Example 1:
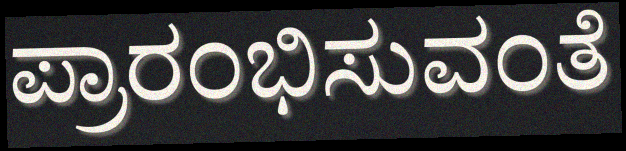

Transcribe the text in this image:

ಪ್ರಾರಂಭಿಸುವಂತೆ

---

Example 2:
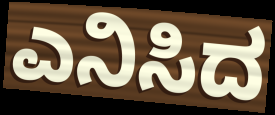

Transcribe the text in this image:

ಎನಿಸಿದ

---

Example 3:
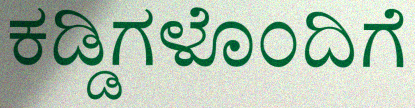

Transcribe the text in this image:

ಕಡ್ಡಿಗಳೊಂದಿಗೆ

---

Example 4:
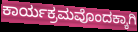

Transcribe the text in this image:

ಕಾರ್ಯಕ್ರಮವೊಂದಕ್ಕಾಗಿ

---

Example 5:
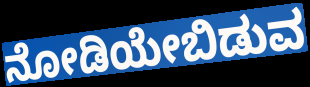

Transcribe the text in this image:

ನೋಡಿಯೇಬಿಡುವ